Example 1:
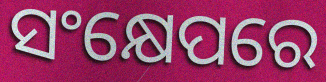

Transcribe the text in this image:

ସଂକ୍ଷେପରେ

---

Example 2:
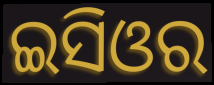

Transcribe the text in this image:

ଇସିଓର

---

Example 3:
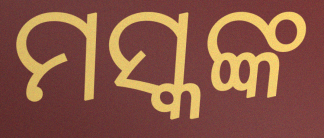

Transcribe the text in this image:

ମସ୍କଙ୍କ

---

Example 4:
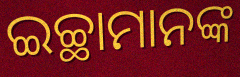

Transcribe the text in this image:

ଇଚ୍ଛାମାନଙ୍କ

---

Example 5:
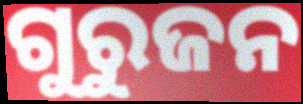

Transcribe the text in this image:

ଗୁରୁଜନ